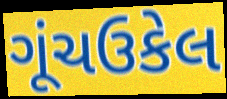
ગૂંચઉકેલ